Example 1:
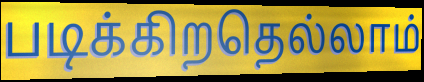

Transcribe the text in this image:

படிக்கிறதெல்லாம்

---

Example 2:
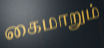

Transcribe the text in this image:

கைமாறும்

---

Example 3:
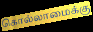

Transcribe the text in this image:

கொல்லாமைக்கு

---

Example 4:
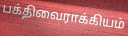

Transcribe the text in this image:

பக்திவைராக்கியம்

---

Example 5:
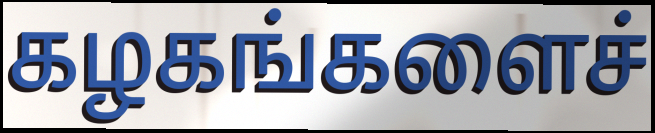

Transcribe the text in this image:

கழகங்களைச்